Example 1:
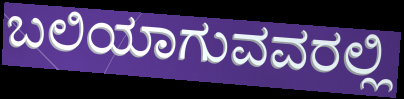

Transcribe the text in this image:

ಬಲಿಯಾಗುವವರಲ್ಲಿ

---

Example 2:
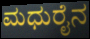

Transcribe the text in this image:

ಮಧುರೈನ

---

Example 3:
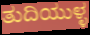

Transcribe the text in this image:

ತುದಿಯುಳ್ಳ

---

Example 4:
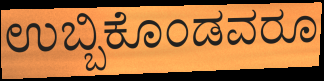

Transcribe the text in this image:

ಉಬ್ಬಿಕೊಂಡವರೂ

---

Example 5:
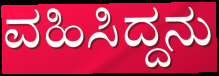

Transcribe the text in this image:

ವಹಿಸಿದ್ದನು